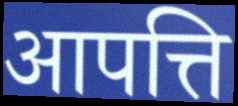
आपत्ति